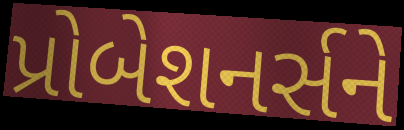
પ્રોબેશનર્સને